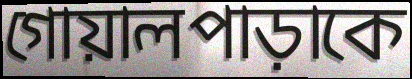
গোয়ালপাড়াকে